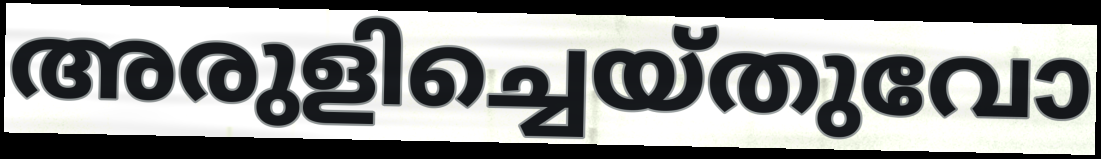
അരുളിച്ചെയ്തുവോ